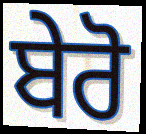
ਬੇਰੋ